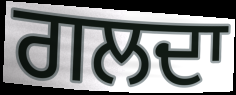
ਗਲਦਾ